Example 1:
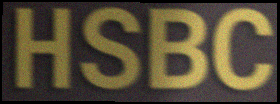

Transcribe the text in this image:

HSBC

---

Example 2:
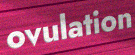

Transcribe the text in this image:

ovulation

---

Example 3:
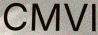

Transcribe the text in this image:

CMVI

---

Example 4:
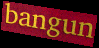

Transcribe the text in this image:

bangun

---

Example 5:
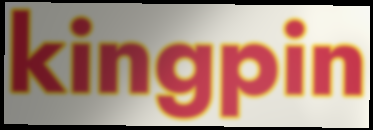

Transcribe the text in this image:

kingpin